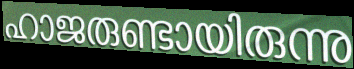
ഹാജരുണ്ടായിരുന്നു